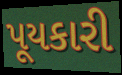
પૂયકારી